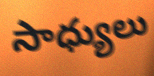
సాధ్యులు